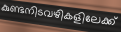
കുണ്ടനിടവഴികളിലേക്ക്